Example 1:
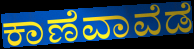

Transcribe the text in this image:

ಕಾಣೆವಾವೆಡೆ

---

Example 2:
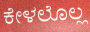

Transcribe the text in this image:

ಕೇಳಲೊಲ್ಲ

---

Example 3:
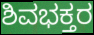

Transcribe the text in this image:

ಶಿವಭಕ್ತರ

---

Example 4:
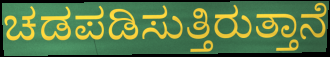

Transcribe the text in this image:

ಚಡಪಡಿಸುತ್ತಿರುತ್ತಾನೆ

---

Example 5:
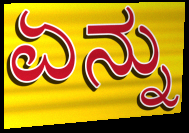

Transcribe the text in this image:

ಏನ್ನು